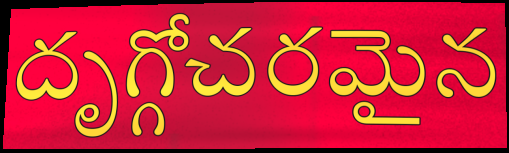
దృగ్గోచరమైన